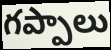
గప్పాలు